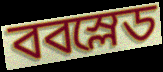
ববস্লেড